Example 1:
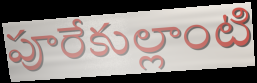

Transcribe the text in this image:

పూరేకుల్లాంటి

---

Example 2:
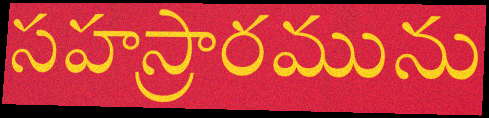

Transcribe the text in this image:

సహస్రారమును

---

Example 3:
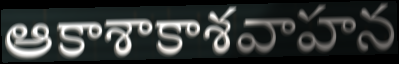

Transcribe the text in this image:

ఆకాశాకాశవాహన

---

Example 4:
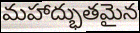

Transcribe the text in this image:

మహాద్భుతమైన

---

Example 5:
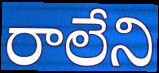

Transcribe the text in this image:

రాలేని